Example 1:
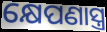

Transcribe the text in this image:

କ୍ଷେପଣାସ୍ତ୍ର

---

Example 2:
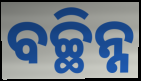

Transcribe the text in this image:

ବଚ୍ଛିନ୍ନ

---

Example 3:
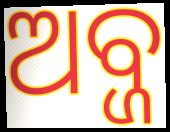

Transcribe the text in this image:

ଅବ୍ଜ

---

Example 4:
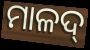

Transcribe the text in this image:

ମାଳଦ୍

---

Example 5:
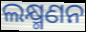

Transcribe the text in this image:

ଲକ୍ଷ୍ମଣନ